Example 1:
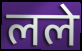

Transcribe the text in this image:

लले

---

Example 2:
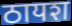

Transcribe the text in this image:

ठायश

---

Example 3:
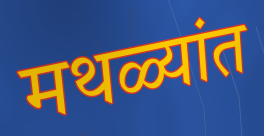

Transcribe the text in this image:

मथळ्यांत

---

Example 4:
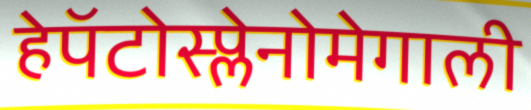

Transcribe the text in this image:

हेपॅटोस्प्लेनोमेगाली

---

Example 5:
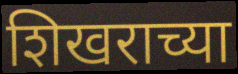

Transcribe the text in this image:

शिखराच्या